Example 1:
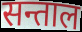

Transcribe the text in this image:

सन्ताल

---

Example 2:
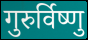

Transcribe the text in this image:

गुरुर्विष्णु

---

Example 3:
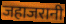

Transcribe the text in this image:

जहाजरानी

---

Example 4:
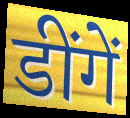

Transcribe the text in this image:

डींगें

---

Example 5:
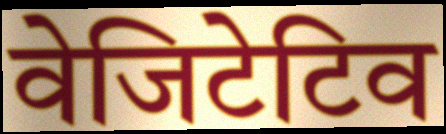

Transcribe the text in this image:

वेजिटेटिव